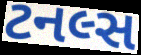
ટનલ્સ